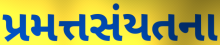
પ્રમત્તસંયતના